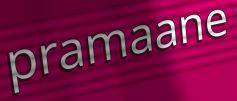
pramaane